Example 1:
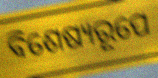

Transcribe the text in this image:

ବିଶେଷ୍ୟରୂପେ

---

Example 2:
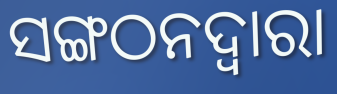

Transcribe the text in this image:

ସଙ୍ଗଠନଦ୍ୱାରା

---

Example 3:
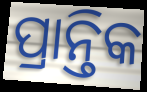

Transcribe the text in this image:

ପ୍ରାନ୍ତିକ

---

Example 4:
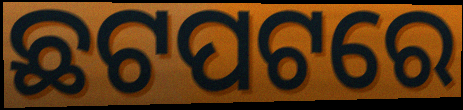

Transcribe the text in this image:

ଛଟପଟରେ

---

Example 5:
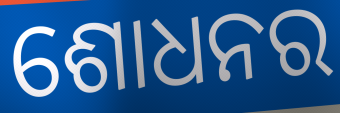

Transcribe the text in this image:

ଶୋଧନର